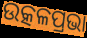
ଉତ୍କଳପ୍ରଭା